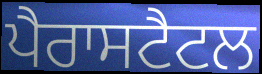
ਪੈਰਾਸਟੈਟਲ